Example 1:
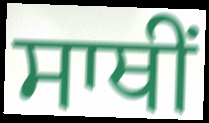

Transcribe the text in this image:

ਸਾਥੀਂ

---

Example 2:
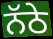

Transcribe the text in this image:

ਨੱਠੇ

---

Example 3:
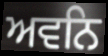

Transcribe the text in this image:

ਅਵਨਿ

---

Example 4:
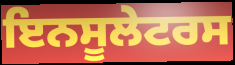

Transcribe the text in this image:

ਇਨਸੂਲੇਟਰਸ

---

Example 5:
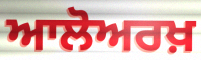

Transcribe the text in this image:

ਆਲੋਅਰਖ਼